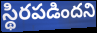
స్థిరపడిందని